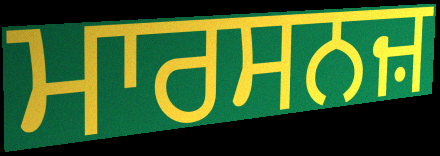
ਮਾਰਸਨਜ਼